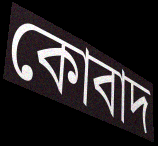
কোবাদ